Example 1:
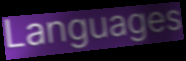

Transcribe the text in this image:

Languages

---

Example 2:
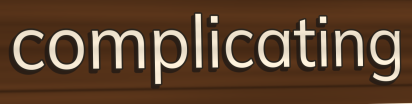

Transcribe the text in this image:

complicating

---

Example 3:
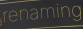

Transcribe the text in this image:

renaming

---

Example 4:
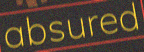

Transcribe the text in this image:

absured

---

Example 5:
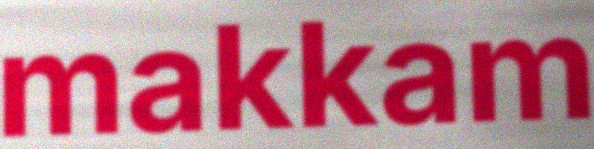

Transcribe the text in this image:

makkam